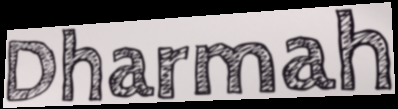
Dharmah